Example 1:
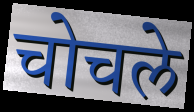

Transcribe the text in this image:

चोचले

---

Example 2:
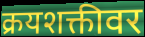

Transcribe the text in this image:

क्रयशक्तीवर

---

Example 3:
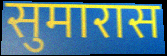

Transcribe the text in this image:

सुमारास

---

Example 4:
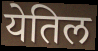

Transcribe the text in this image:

येतिल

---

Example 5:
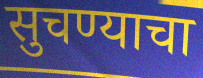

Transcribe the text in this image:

सुचण्याचा